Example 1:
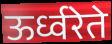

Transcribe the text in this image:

ऊर्ध्वरेते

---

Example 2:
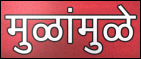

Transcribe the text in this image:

मुळांमुळे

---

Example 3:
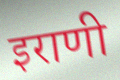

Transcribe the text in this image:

इराणी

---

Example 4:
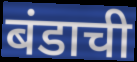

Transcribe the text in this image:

बंडाची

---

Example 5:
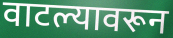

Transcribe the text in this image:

वाटल्यावरून